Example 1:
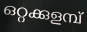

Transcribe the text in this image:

ഒറ്റക്കുളമ്പ്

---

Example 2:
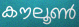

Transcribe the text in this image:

കൗലൂൺ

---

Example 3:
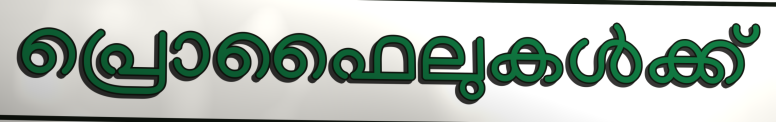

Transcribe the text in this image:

പ്രൊഫൈലുകൾക്ക്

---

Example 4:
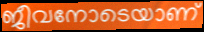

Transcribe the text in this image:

ജീവനോടെയാണ്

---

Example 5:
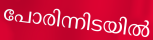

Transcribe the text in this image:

പോരിന്നിടയിൽ